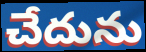
చేదును